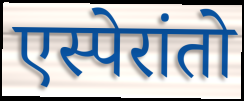
एस्पेरांतो